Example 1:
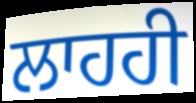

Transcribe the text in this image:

ਲਾਹਹੀ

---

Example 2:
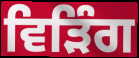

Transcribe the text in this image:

ਵਿੜਿੰਗ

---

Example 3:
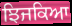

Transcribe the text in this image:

ਝਿਜਕਿਆ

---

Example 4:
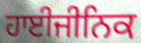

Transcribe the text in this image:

ਹਾਈਜੀਨਿਕ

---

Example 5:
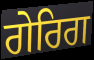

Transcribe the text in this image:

ਗੇਰਿਗ